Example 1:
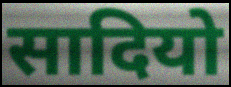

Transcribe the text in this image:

सादियो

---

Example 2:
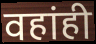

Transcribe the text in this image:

वहांही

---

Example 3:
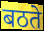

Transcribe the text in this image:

बठते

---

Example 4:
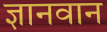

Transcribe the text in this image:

ज्ञानवान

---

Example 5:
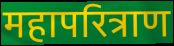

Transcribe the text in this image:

महापरित्राण